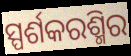
ସ୍ପର୍ଶକରଶ୍ମିର